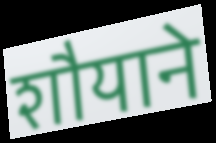
शौयाने